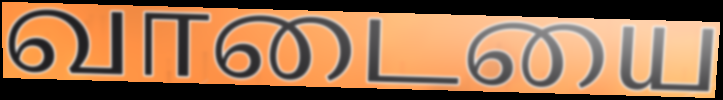
வாடையை